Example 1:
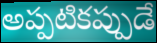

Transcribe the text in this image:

అప్పటికప్పుడే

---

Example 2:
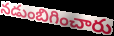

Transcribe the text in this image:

నడుంబిగించారు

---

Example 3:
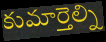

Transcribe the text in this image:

కుమార్తెల్ని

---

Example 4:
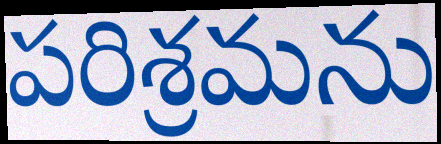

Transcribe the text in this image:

పరిశ్రమను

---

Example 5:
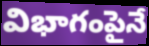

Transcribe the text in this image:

విభాగంపైనే